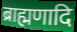
ब्राह्मणादि